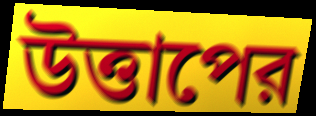
উত্তাপের